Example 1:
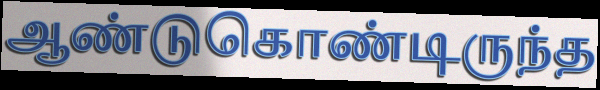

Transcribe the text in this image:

ஆண்டுகொண்டிருந்த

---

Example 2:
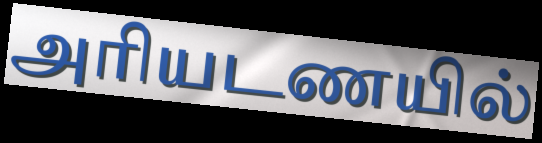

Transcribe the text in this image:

அரியடணயில்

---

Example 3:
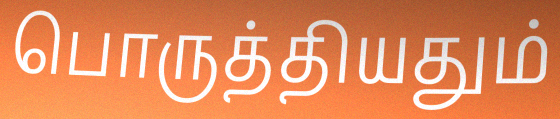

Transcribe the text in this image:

பொருத்தியதும்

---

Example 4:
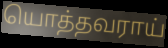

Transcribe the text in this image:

யொத்தவராய்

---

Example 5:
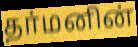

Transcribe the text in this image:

தர்மனின்